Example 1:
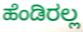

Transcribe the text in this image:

ಹೆಂಡಿರಲ್ಲ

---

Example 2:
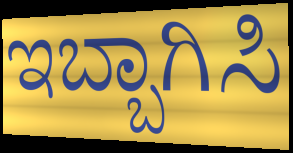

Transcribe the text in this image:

ಇಬ್ಬಾಗಿಸಿ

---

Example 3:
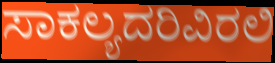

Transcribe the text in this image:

ಸಾಕಲ್ಯದರಿವಿರಲಿ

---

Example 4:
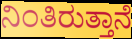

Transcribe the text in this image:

ನಿಂತಿರುತ್ತಾನೆ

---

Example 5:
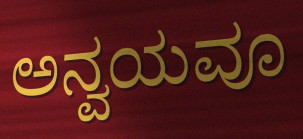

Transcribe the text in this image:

ಅನ್ವಯವೂ